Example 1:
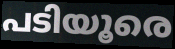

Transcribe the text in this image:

പടിയൂരെ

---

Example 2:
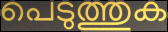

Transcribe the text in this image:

പെടുത്തുക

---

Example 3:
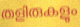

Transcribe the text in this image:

തളിരുകളും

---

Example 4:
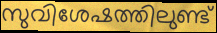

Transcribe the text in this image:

സുവിശേഷത്തിലുണ്ട്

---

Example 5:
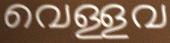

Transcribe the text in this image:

വെള്ളവ